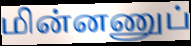
மின்னணுப்